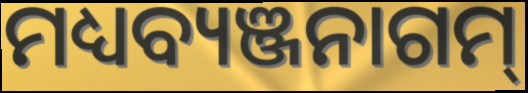
ମଧ୍ୟବ୍ୟଞ୍ଜନାଗମ୍